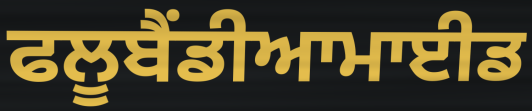
ਫਲੂਬੈਂਡੀਆਮਾਈਡ